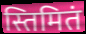
स्तिमितं